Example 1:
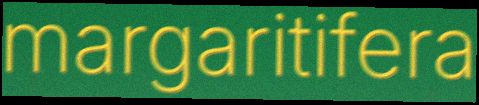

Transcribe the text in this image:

margaritifera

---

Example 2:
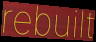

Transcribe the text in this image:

rebuilt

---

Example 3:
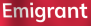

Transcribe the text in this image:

Emigrant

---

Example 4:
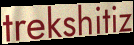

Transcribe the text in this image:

trekshitiz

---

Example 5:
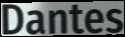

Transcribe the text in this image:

Dantes